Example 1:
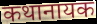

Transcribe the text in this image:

कथानायक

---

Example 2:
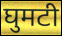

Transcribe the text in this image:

घुमटी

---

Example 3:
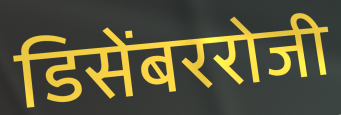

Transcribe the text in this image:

डिसेंबररोजी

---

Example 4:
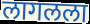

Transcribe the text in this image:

लागलला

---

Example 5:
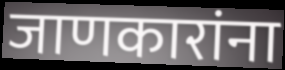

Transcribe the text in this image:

जाणकारांना